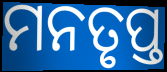
ମନତୃପ୍ତ